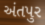
અંતપુર